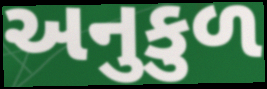
અનુકુળ